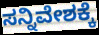
ಸನ್ನಿವೇಶಕ್ಕೆ